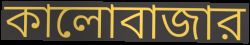
কালোবাজার